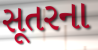
સૂતરના